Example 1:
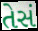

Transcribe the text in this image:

તેસં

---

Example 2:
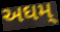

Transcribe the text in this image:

અઘમ્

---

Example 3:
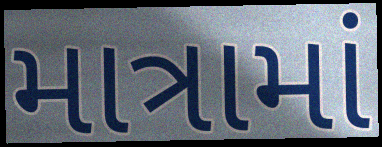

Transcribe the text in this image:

માત્રામાં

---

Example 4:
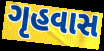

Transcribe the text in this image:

ગૃહવાસ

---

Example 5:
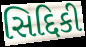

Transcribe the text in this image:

સિદ્દિકી